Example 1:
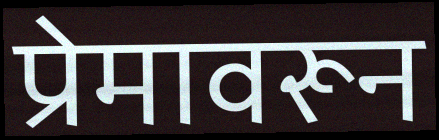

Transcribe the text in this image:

प्रेमावरून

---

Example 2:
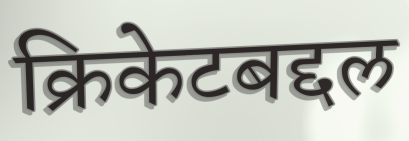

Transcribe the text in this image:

क्रिकेटबद्दल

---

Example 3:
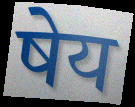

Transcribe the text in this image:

षेय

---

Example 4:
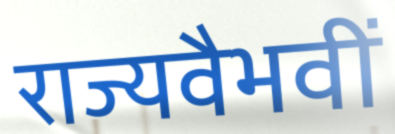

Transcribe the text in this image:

राज्यवैभवीं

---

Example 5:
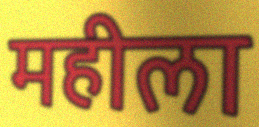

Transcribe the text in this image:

महीला